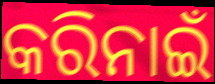
କରିନାଇଁ